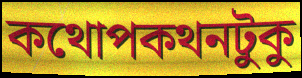
কথোপকথনটুকু